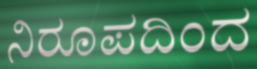
ನಿರೂಪದಿಂದ